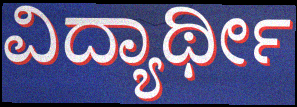
ವಿದ್ಯಾರ್ಥೀ